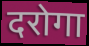
दरोगा